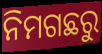
ନିମଗଛରୁ